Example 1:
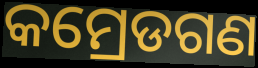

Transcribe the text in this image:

କମ୍ରେଡଗଣ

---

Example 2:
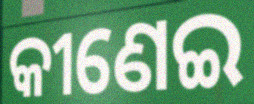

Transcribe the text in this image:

କୀଣେଇ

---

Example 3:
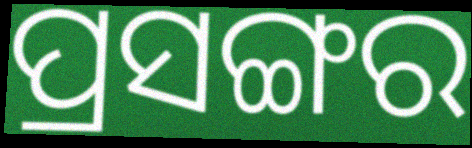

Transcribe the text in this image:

ପ୍ରସଙ୍ଗର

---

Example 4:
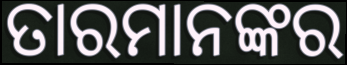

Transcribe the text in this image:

ତାରମାନଙ୍କର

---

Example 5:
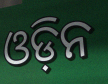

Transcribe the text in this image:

ଓଡ଼ିନ